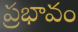
ప్రభావం